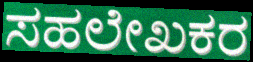
ಸಹಲೇಖಕರ